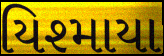
યિશ્માયા